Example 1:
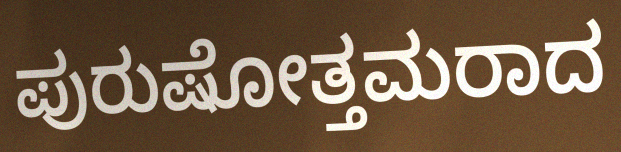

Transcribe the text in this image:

ಪುರುಷೋತ್ತಮರಾದ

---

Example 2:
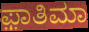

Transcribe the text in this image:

ಫ಼ಾತಿಮಾ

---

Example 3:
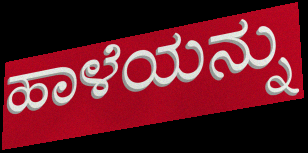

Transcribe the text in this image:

ಹಾಳೆಯನ್ನು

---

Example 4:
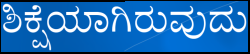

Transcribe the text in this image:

ಶಿಕ್ಷೆಯಾಗಿರುವುದು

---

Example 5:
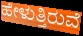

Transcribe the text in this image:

ಹೇಳುತ್ತಿರುವೆ